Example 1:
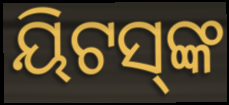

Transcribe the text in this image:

ୟିଟସ୍‌ଙ୍କ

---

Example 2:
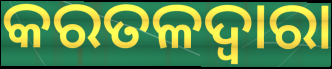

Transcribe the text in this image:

କରତଳଦ୍ଵାରା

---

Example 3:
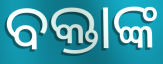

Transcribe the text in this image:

ବକ୍ତାଙ୍କ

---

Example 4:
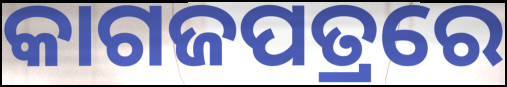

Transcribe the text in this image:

କାଗଜପତ୍ରରେ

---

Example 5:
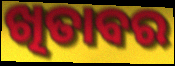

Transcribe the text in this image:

ଖିତାବର